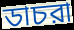
ডাচরা